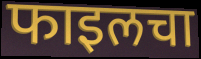
फाइलचा